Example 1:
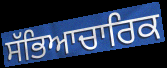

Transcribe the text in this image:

ਸੱਭਿਆਚਾਰਿਕ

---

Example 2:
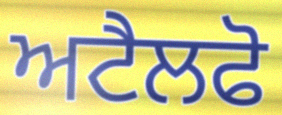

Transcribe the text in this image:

ਅਟੈਲਫੋ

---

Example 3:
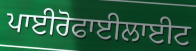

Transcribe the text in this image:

ਪਾਈਰੋਫਾਈਲਾਈਟ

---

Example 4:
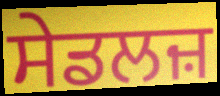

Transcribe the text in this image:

ਸੇਡਲਜ਼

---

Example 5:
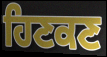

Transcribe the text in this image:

ਹਿਣਕਣ